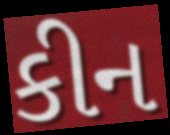
કીન